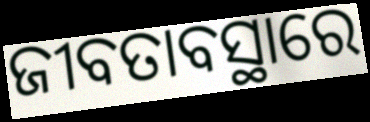
ଜୀବତାବସ୍ଥାରେ